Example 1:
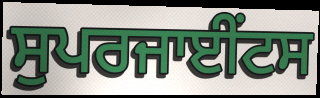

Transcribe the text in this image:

ਸੁਪਰਜਾਈਂਟਸ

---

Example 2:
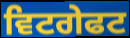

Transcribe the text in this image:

ਵਿਟਗੇਫਟ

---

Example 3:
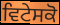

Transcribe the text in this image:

ਵਿਟੇਸਕੋ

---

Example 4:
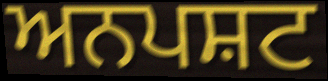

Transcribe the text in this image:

ਅਨਪਸ਼ਟ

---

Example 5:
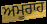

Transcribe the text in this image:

ਅਮੂਰਾਹ